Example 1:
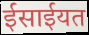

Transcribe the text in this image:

ईसाईयत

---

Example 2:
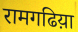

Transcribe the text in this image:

रामगढिय़ा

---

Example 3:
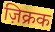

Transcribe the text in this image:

ज़िक्रक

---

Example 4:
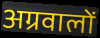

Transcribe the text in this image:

अग्रवालों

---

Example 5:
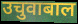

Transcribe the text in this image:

उचुवाबाल